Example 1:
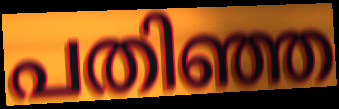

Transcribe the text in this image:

പതിഞ്ഞ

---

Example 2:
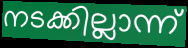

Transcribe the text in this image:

നടക്കില്ലാന്ന്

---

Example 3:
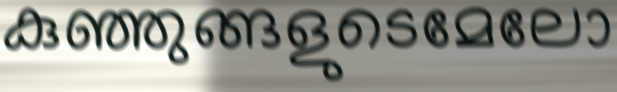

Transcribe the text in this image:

കുഞ്ഞുങ്ങളുടെമേലോ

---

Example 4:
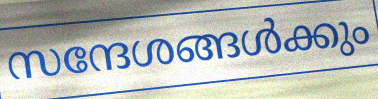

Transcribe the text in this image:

സന്ദേശങ്ങൾക്കും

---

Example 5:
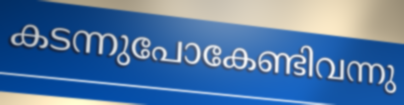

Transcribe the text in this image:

കടന്നുപോകേണ്ടിവന്നു